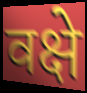
वक्षे